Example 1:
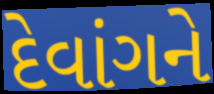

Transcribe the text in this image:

દેવાંગને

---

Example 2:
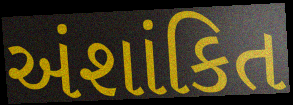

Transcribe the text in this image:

અંશાંકિત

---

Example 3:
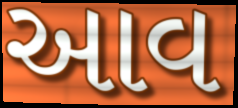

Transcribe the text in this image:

આવ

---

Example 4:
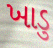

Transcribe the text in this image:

ખાડુ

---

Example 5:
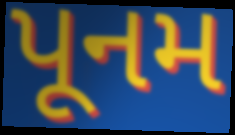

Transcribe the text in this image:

પૂનમ